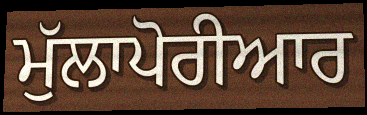
ਮੁੱਲਾਪੋਰੀਆਰ